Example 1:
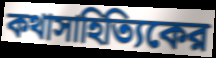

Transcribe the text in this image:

কথাসাহিত্যিকের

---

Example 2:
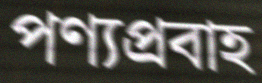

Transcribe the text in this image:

পণ্যপ্রবাহ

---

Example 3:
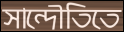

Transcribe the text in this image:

সান্দৌতিতে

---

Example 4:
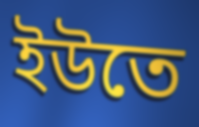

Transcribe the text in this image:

ইউতে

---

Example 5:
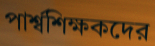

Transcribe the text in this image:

পার্শ্বশিক্ষকদের